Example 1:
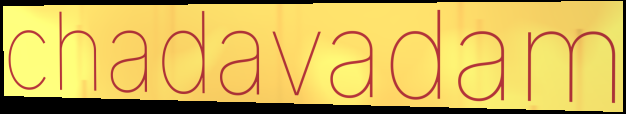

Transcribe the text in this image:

chadavadam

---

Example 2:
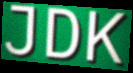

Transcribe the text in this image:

JDK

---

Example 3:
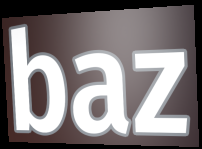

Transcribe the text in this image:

baz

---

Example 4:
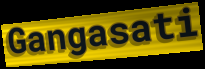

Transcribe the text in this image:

Gangasati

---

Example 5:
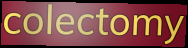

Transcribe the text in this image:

colectomy